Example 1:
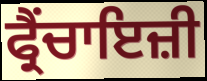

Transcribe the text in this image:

ਫ੍ਰੈਂਚਾਇਜ਼ੀ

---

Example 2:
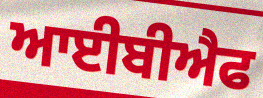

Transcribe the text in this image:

ਆਈਬੀਐਫ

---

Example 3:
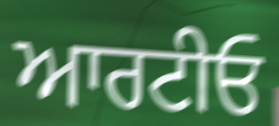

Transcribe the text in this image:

ਆਰਟੀਓ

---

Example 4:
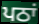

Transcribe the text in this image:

ਪਠਾਂ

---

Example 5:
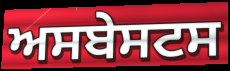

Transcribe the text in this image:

ਅਸਬੇਸਟਸ